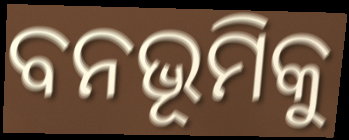
ବନଭୂମିକୁ